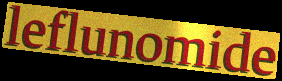
leflunomide